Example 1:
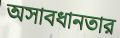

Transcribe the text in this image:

অসাবধানতার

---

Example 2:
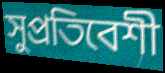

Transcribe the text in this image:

সুপ্রতিবেশী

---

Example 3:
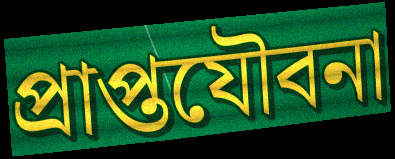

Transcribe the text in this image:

প্রাপ্তযৌবনা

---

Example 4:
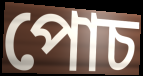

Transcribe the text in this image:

পোচ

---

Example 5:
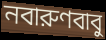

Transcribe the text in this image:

নবারুণবাবু